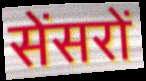
सेंसरों